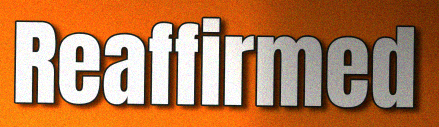
Reaffirmed